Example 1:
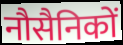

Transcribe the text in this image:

नौसैनिकों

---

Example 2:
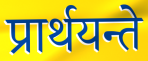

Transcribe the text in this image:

प्रार्थयन्ते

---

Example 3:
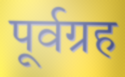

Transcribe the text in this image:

पूर्वग्रह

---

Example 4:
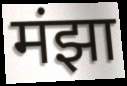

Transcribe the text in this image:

मंझा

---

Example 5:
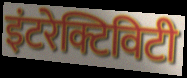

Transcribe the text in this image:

इंटरेक्टिविटी